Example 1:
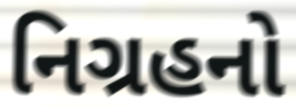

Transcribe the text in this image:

નિગ્રહનો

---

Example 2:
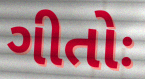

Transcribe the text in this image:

ગીતોઃ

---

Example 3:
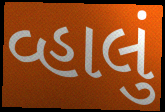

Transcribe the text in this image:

વ્હાલું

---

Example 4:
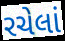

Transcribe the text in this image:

રચેલાં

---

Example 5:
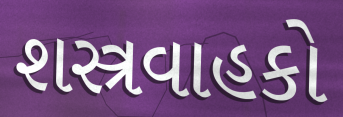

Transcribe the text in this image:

શસ્ત્રવાહકો